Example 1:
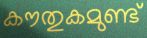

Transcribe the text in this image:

കൗതുകമുണ്ട്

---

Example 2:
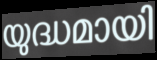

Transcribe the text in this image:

യുദ്ധമായി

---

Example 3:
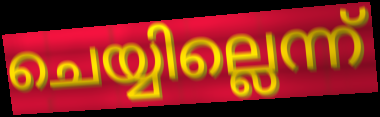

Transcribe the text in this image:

ചെയ്യില്ലെന്ന്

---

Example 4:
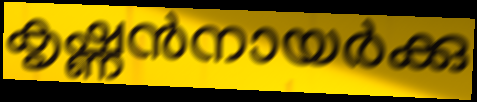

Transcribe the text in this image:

കൃഷ്ണൻനായർക്കു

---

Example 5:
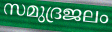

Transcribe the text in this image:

സമുദ്രജലം